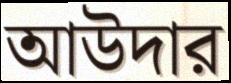
আউদার